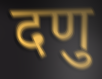
दणु